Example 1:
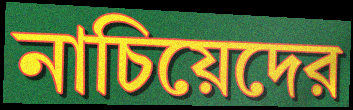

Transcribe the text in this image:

নাচিয়েদের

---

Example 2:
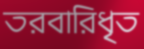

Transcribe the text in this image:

তরবারিধৃত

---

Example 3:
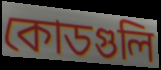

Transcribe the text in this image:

কোডগুলি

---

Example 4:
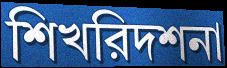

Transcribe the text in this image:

শিখরিদশনা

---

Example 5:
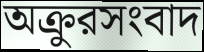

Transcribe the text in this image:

অক্রুরসংবাদ